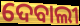
ଦେବାଲୀ